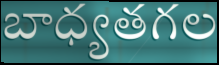
బాధ్యతగల